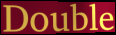
Double